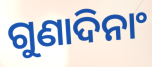
ଗୁଣାଦିନାଂ